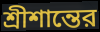
শ্রীশান্তের